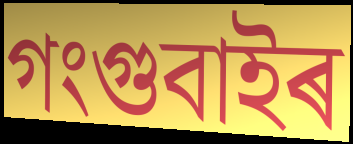
গংগুবাইৰ